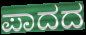
ಪಾದದ